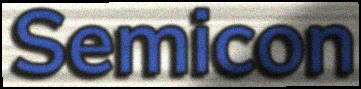
Semicon